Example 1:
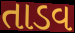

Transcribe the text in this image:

તાડવ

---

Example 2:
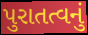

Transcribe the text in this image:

પુરાતત્વનું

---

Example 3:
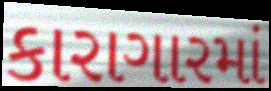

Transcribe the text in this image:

કારાગારમાં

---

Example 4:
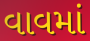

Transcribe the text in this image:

વાવમાં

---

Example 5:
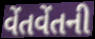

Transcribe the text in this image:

વેંતવેંતની